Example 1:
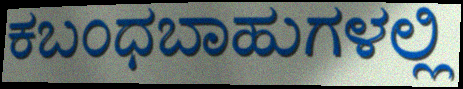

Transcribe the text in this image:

ಕಬಂಧಬಾಹುಗಳಲ್ಲಿ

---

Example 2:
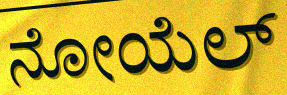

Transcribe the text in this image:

ನೋಯೆಲ್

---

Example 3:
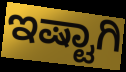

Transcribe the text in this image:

ಇಷ್ಟಾಗಿ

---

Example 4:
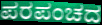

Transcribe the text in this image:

ಪರಪಂಚದ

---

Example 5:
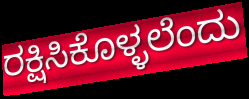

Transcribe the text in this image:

ರಕ್ಷಿಸಿಕೊಳ್ಳಲೆಂದು